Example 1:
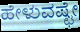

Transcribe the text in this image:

ಹೇಳುವಷ್ಟೇ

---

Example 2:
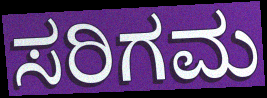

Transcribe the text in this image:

ಸರಿಗಮ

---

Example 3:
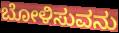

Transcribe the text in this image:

ಬೋಳಿಸುವನು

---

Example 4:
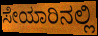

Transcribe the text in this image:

ಸೇಯಾರಿನಲ್ಲಿ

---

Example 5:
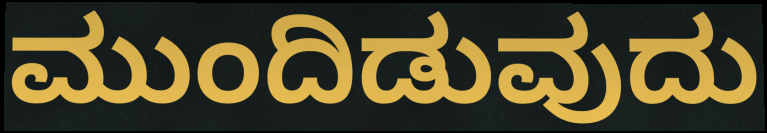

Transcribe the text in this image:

ಮುಂದಿಡುವುದು